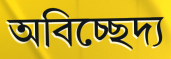
অবিচ্ছেদ্য